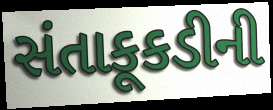
સંતાકૂકડીની